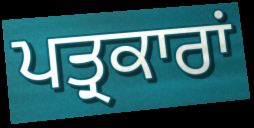
ਪਤ੍ਰਕਾਰਾਂ